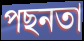
পছনতা